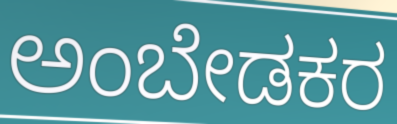
ಅಂಬೇಡಕರ